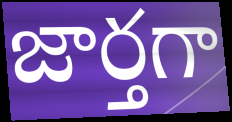
జార్తగా